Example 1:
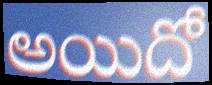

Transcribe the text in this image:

అయిదో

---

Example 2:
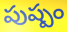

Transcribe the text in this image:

పుష్పం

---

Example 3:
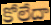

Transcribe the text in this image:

కోలేదా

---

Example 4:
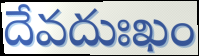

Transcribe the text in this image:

దేవదుఃఖం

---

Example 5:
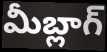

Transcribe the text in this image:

మీబ్లాగ్